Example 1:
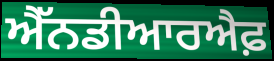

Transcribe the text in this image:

ਐੱਨਡੀਆਰਐਫ਼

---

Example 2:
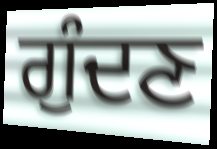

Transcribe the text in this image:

ਗੁੰਦਣ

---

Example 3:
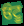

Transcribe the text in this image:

ਓਟੂ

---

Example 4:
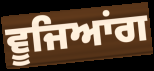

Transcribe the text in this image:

ਵੂਜਿਆਂਗ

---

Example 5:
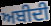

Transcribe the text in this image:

ਅਬੀਦੀ